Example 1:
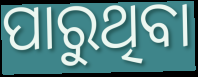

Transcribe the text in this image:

ପାରୁଥିବା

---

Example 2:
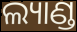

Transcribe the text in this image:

ଲ୍ୟାଣ୍ଡ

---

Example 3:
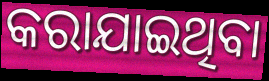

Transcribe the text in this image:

କରାଯାଇଥିବା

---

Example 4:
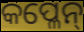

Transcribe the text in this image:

କପ୍ଳେନ୍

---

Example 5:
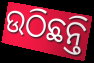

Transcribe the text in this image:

ଉଠିଛନ୍ତି